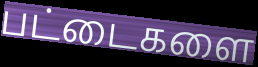
பட்டைகளை